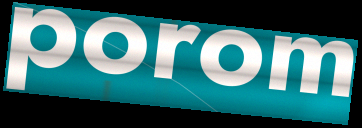
porom